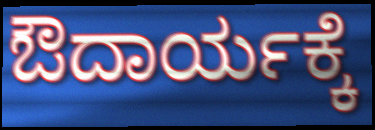
ಔದಾರ್ಯಕ್ಕೆ